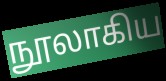
நூலாகிய